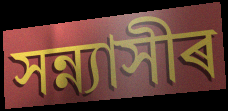
সন্ন্যাসীৰ